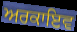
ਅਰਕਾਇਵ